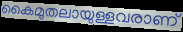
കൈമുതലായുള്ളവരാണ്